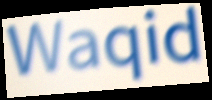
Waqid